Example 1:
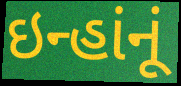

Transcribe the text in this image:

ઇન્હાંનૂં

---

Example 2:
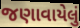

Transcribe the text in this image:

જણાવાયેલું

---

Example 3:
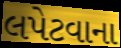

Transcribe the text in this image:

લપેટવાના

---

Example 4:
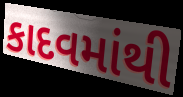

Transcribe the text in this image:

કાદવમાંથી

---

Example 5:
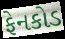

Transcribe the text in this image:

ફેનકોડ